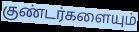
குண்டர்களையும்